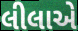
લીલાએ